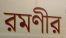
রমণীর